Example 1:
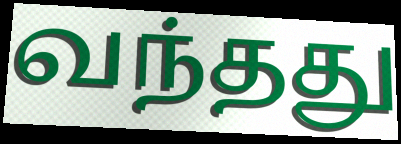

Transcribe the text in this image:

வந்தது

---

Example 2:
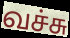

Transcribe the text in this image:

வச்சு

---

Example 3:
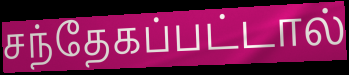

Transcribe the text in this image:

சந்தேகப்பட்டால்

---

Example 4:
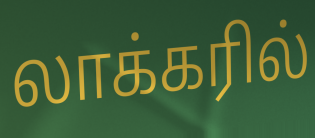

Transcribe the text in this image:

லாக்கரில்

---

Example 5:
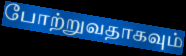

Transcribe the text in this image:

போற்றுவதாகவும்